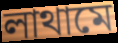
লাথামে